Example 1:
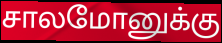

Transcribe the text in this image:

சாலமோனுக்கு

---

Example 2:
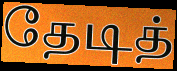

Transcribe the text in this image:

தேடித்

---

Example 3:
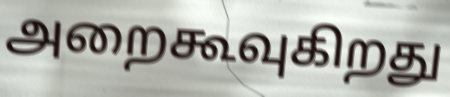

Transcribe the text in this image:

அறைகூவுகிறது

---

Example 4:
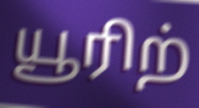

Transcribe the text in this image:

யூரிற்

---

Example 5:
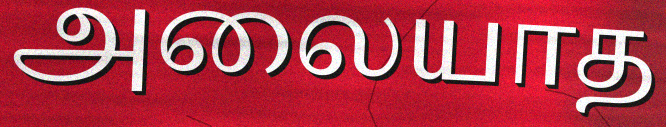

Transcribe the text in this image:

அலையாத